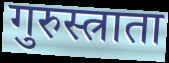
गुरुस्त्राता